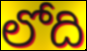
లోది